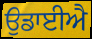
ਉਡਾਈਐ